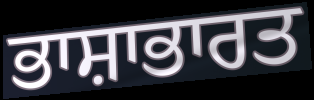
ਭਾਸ਼ਾਭਾਰਤ